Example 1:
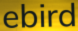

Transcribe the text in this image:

ebird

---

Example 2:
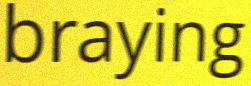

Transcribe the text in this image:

braying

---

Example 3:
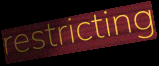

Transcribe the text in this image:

restricting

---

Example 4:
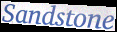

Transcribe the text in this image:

Sandstone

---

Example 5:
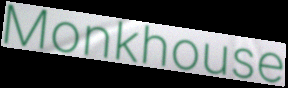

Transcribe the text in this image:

Monkhouse